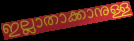
ഇല്ലാതാക്കാനുള്ള